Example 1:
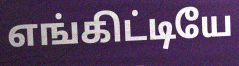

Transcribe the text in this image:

எங்கிட்டியே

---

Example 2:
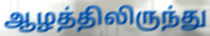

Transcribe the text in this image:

ஆழத்திலிருந்து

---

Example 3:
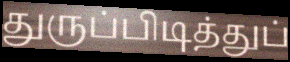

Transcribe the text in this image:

துருப்பிடித்துப்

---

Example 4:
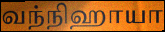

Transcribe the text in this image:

வந்நிஹாயா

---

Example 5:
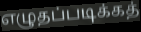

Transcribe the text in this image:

எழுதப்படிக்கத்